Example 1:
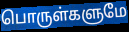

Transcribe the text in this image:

பொருள்களுமே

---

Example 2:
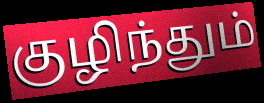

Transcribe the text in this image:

குழிந்தும்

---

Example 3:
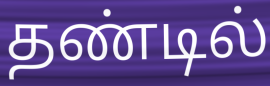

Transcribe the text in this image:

தண்டில்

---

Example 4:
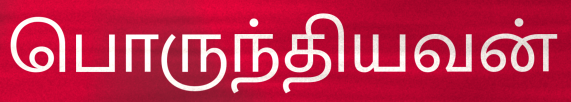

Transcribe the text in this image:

பொருந்தியவன்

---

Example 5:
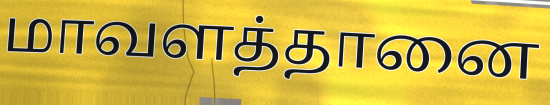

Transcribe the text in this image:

மாவளத்தானை